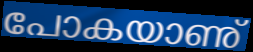
പോകയാണു്